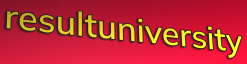
resultuniversity